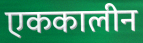
एककालीन